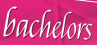
bachelors